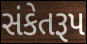
સંકેતરૂપ